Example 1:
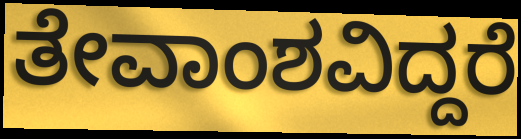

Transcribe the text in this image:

ತೇವಾಂಶವಿದ್ದರೆ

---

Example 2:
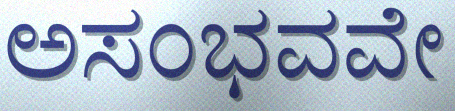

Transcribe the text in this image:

ಅಸಂಭವವೇ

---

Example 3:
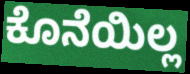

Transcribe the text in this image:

ಕೊನೆಯಿಲ್ಲ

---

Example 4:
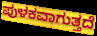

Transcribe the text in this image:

ಪುಳಕವಾಗುತ್ತದೆ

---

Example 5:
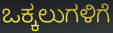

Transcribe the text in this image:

ಒಕ್ಕಲುಗಳಿಗೆ